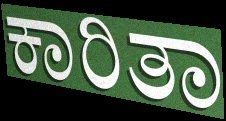
ಕಾರಿತಾ